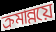
ক্রমান্নয়ে